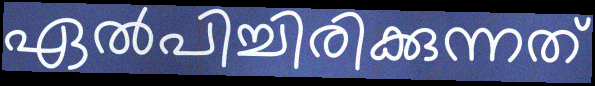
ഏൽപിച്ചിരിക്കുന്നത്